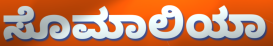
ಸೊಮಾಲಿಯಾ